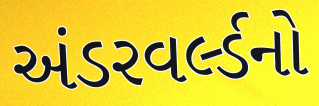
અંડરવર્લ્ડનો